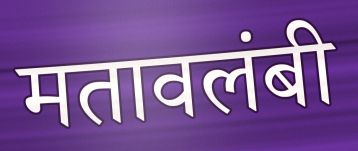
मतावलंबी